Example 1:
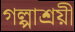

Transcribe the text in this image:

গল্পাশ্রয়ী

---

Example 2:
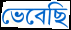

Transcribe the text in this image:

ভেবেছি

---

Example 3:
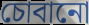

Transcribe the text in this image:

চোবানো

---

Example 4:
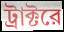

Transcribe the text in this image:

ট্রাক্টরে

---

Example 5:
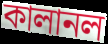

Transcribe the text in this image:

কালানল